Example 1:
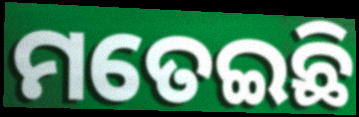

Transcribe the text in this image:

ମତେଇଛି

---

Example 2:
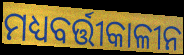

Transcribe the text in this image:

ମଧ୍ୟବର୍ତ୍ତୀକାଳୀନ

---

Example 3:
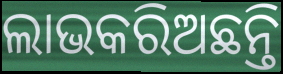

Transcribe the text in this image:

ଲାଭକରିଅଛନ୍ତି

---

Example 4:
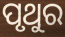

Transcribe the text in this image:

ପୃଥୁର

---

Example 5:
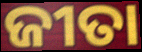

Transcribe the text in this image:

ଜୀତା